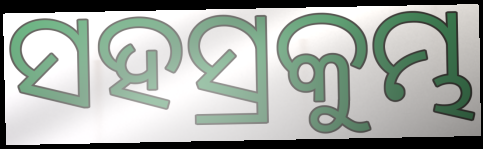
ସହସ୍ରକୁମ୍ଭ